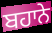
ਬਹਾਨੇ